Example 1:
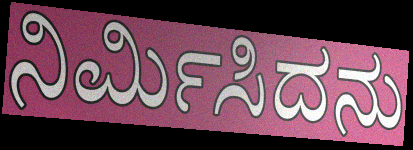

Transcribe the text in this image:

ನಿರ್ಮಿಸಿದನು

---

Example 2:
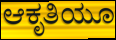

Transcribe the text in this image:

ಆಕೃತಿಯೂ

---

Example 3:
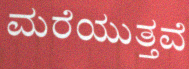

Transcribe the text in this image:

ಮರೆಯುತ್ತವೆ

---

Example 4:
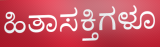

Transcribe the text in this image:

ಹಿತಾಸಕ್ತಿಗಳೂ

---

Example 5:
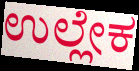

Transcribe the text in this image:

ಉಲ್ಲೇಕ